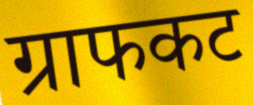
ग्राफकट